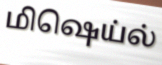
மிஷெய்ல்